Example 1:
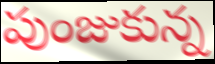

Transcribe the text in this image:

పుంజుకున్న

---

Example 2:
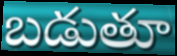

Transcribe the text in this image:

బడుతూ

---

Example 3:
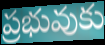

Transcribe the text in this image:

ప్రభువుకు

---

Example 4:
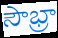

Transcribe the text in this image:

సౌభ్రా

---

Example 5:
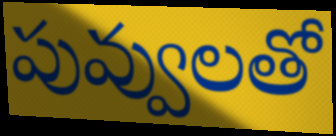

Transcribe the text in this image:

పువ్వులతో